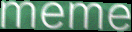
meme